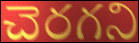
చెరగని